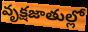
వృక్షజాతుల్లో